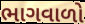
ભાગવાળો